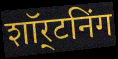
शॉर्टनिंग